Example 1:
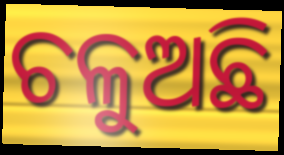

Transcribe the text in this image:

ଚଳୁଅଛି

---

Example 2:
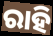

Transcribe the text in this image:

ରାହି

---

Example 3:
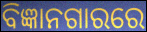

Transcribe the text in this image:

ବିଜ୍ଞାନଗାରରେ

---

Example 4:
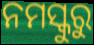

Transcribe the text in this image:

ନମସ୍କୁରୁ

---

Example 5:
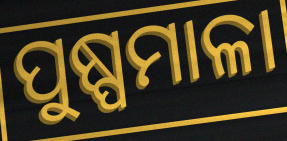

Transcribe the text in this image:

ପୁଷ୍ପମାଳା